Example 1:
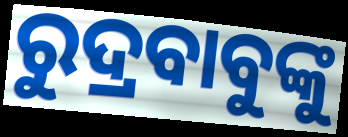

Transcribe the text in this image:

ରୁଦ୍ରବାବୁଙ୍କୁ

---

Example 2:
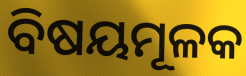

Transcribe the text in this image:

ବିଷୟମୂଳକ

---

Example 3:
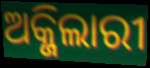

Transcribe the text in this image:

ଅକ୍ଜିଲାରୀ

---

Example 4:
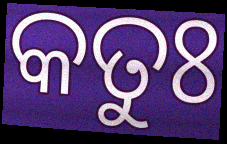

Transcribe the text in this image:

କତୁଃ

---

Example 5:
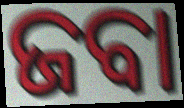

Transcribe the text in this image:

ଜବା